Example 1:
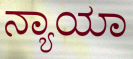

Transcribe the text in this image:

ನ್ಯಾಯಾ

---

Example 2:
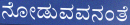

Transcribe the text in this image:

ನೋಡುವವನಂತೆ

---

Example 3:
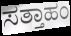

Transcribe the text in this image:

ಸತ್ತಾಹಂ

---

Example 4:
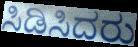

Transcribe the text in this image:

ಸಿಡಿಸಿದರು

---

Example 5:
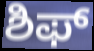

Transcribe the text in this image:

ಶಿಫ್